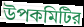
উপকমিটির